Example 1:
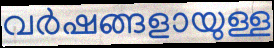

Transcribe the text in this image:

വർഷങ്ങളായുള്ള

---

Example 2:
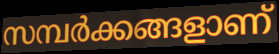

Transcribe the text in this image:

സമ്പർക്കങ്ങളാണ്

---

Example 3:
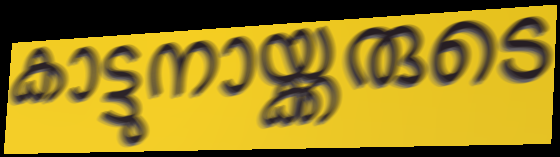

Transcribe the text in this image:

കാട്ടുനായ്ക്കരുടെ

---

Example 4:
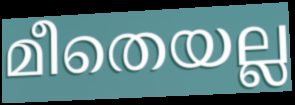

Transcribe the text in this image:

മീതെയല്ല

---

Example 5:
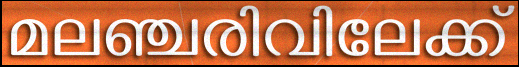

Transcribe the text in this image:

മലഞ്ചരിവിലേക്ക്